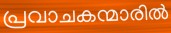
പ്രവാചകന്മാരിൽ